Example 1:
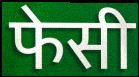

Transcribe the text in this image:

फेसी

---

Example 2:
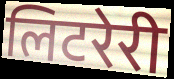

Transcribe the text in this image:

लिटरेरी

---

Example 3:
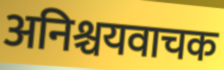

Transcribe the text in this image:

अनिश्चयवाचक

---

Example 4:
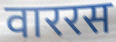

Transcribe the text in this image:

वाररस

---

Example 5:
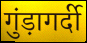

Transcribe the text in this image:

गुंड़ागर्दी